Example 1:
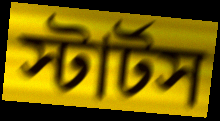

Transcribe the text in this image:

স্টার্টস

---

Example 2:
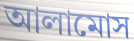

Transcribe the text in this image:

আলামোস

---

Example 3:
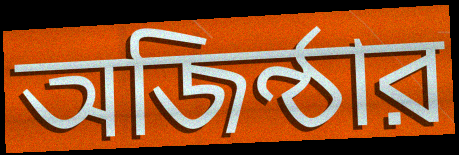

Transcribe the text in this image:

অজিন্ঠার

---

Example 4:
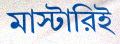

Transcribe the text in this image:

মাস্টারিই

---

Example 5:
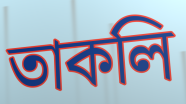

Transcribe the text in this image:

তাকলি